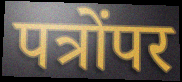
पत्रोंपर